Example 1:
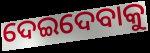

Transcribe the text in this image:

ଦେଇଦେବାକୁ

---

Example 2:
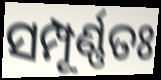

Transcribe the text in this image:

ସମ୍ପୂର୍ଣ୍ଣତଃ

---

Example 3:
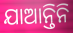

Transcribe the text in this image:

ଯାଆନ୍ତିନି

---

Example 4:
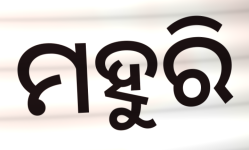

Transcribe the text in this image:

ମହୁରି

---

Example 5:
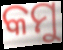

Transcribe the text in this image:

କମୁ